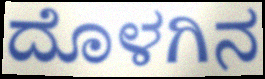
ದೊಳಗಿನ